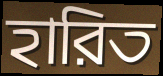
হারিত